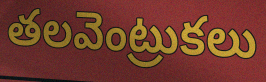
తలవెంట్రుకలు